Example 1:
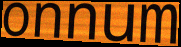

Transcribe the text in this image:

onnum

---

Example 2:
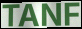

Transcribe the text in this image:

TANF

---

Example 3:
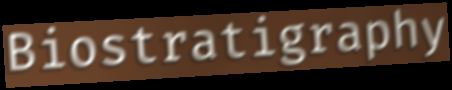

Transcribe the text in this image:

Biostratigraphy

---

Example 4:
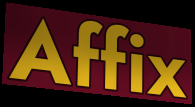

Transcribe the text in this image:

Affix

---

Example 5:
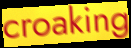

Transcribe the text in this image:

croaking